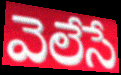
వెలేసే